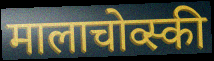
मालाचोव्स्की